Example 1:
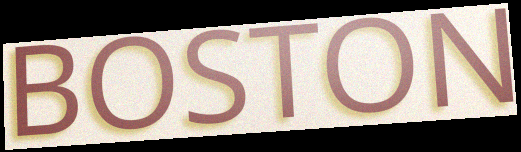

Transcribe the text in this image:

BOSTON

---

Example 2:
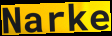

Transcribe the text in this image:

Narke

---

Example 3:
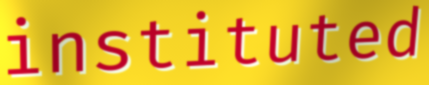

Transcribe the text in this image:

instituted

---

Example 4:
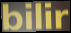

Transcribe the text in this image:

bilir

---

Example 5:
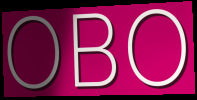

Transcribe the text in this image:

OBO